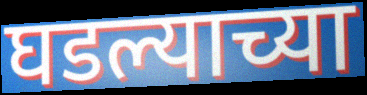
घडल्याच्या